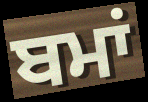
ਬਮਾਂ